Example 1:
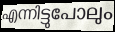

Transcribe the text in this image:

എന്നിട്ടുപോലും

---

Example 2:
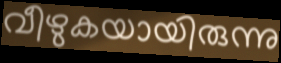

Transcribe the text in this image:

വീഴുകയായിരുന്നു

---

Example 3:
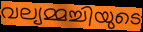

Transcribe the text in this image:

വല്യമ്മച്ചിയുടെ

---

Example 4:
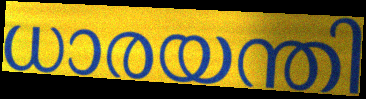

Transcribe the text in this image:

ധാരയന്തി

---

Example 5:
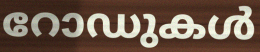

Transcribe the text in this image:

റോഡുകൾ